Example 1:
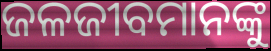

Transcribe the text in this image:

ଜଳଜୀବମାନଙ୍କୁ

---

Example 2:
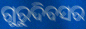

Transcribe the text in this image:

ଗୁରୁଦିବସର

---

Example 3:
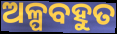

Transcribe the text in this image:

ଅଳ୍ପବହୁତ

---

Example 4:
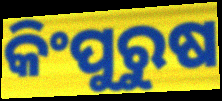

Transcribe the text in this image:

କିଂପୁରୁଷ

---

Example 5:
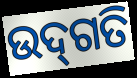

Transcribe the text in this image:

ଉଦ୍‌ଗତି